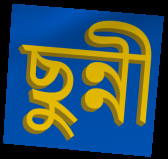
ছুন্নী